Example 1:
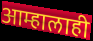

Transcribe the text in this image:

आम्हालाही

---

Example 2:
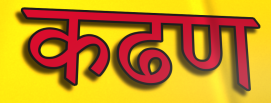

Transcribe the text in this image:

कढण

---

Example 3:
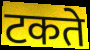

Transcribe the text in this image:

टकते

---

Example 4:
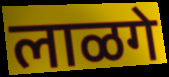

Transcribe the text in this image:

लाळगे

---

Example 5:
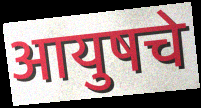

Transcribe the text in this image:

आयुषचे